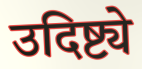
उदिष्ट्ये